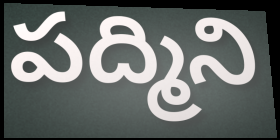
పద్మిని